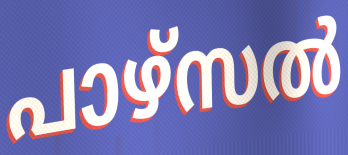
പാഴ്സൽ